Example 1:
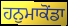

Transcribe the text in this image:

ਹਨੁਮਾਕੋਂਡਾ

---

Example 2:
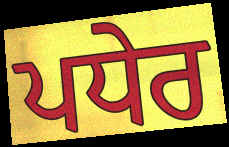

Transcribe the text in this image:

ਪਧੇਰ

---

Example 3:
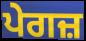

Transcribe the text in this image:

ਪੇਗਜ਼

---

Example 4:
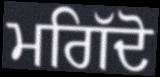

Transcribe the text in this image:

ਮਗਿੱਦੋ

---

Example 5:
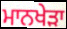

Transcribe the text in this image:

ਮਾਨਖੇੜਾ